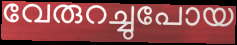
വേരുറച്ചുപോയ